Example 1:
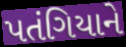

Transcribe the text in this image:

પતંગિયાને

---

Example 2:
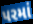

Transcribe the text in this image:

પરમાં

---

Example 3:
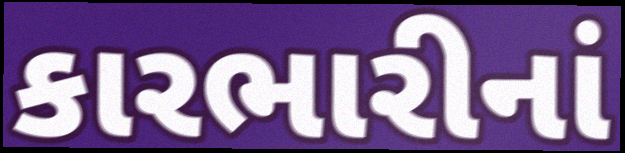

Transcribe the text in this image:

કારભારીનાં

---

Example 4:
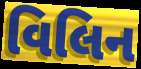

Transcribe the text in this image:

વિલિન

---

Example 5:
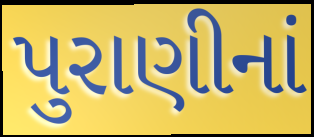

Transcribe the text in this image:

પુરાણીનાં